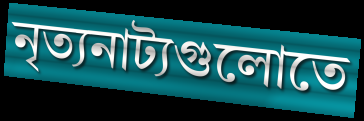
নৃত্যনাট্যগুলোতে